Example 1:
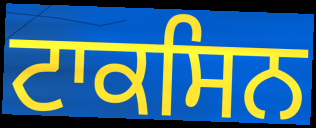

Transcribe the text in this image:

ਟਾਕਸਿਨ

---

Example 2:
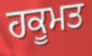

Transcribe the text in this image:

ਹਕੂਮਤ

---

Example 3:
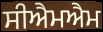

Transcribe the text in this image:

ਸੀਐਮਐਮ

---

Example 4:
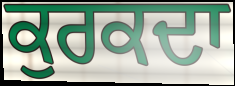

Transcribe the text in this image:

ਕੁਰਕਦਾ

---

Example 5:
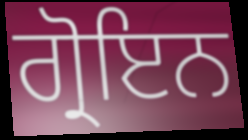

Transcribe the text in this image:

ਗ੍ਰੋਇਨ